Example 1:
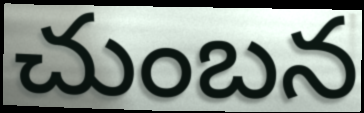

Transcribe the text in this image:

చుంబన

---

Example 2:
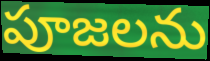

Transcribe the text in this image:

పూజలను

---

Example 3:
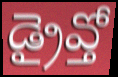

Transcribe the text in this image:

డ్రైవ్తో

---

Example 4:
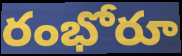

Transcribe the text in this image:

రంభోరూ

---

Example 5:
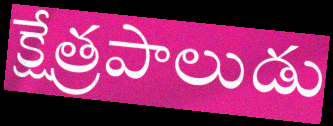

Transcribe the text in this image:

క్షేత్రపాలుడు